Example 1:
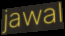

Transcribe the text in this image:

jawal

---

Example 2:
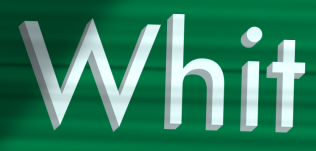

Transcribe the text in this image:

Whit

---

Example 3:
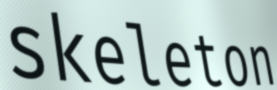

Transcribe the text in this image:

skeleton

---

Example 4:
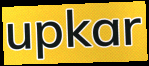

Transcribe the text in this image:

upkar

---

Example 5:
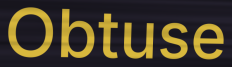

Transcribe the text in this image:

Obtuse